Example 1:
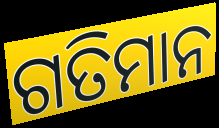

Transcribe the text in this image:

ଗତିମାନ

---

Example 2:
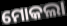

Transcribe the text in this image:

ମୋକଲା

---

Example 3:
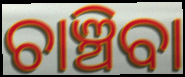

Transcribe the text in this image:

ଚାଞ୍ଚିବା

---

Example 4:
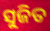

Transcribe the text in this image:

ସୁଜିତ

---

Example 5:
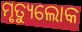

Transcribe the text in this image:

ମୃତ୍ୟୁଲୋକ